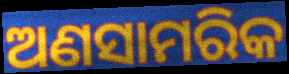
ଅଣସାମରିକ